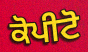
ਕੋਪੀਟੋ